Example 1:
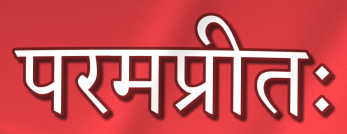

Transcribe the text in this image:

परमप्रीतः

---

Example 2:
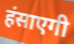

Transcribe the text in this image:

हंसाएगी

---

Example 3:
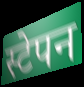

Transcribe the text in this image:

स्टेपन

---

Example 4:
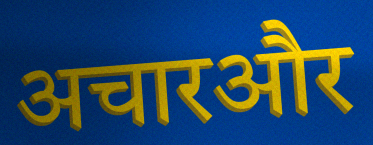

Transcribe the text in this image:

अचारऔर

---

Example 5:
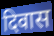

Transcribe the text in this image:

दिवास